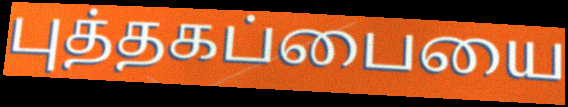
புத்தகப்பையை